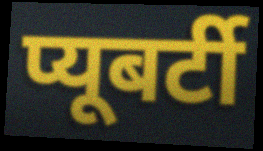
प्यूबर्टी